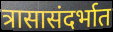
त्रासासंदर्भात